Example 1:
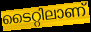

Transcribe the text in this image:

ടൈറ്റിലാണ്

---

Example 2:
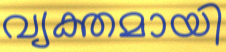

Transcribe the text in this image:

വ്യക്തമായി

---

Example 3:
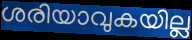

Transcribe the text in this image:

ശരിയാവുകയില്ല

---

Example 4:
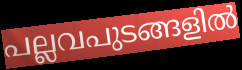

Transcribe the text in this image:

പല്ലവപുടങ്ങളിൽ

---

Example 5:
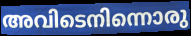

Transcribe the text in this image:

അവിടെനിന്നൊരു